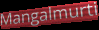
Mangalmurti